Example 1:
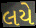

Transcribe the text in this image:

લયે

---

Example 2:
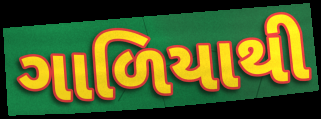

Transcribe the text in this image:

ગાળિયાથી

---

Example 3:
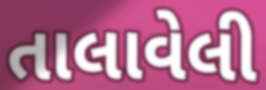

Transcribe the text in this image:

તાલાવેલી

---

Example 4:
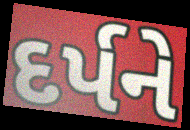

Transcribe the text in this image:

દર્પને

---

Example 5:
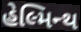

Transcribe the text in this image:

હેલ્મિન્થ